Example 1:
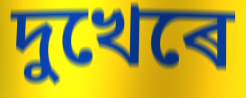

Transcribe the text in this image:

দুখেৰে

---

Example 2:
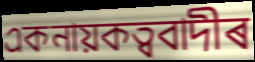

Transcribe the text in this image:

একনায়কত্ববাদীৰ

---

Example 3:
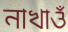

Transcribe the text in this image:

নাখাওঁ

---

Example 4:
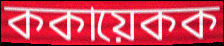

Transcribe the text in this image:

ককায়েকক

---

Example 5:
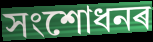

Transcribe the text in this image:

সংশোধনৰ